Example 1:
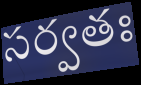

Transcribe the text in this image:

సర్వతః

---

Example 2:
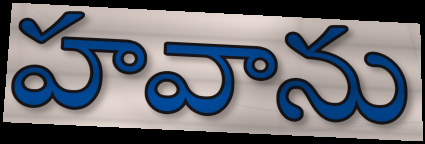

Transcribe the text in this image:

హవాను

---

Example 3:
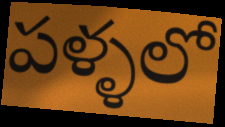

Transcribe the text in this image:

పళ్ళలో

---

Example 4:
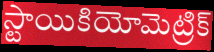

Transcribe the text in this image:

స్టాయికియోమెట్రిక్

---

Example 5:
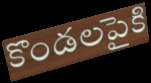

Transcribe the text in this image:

కొండలపైకి